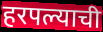
हरपल्याची